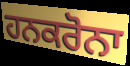
ਹਨਕਰੋਨਾ